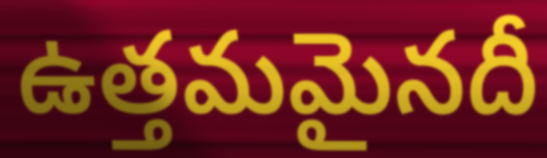
ఉత్తమమైనదీ